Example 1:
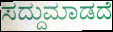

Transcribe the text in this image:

ಸದ್ದುಮಾಡದೆ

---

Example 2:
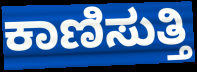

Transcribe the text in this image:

ಕಾಣಿಸುತ್ತಿ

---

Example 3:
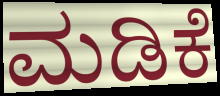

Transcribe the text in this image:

ಮಡಿಕೆ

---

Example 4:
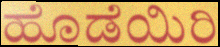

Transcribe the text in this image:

ಹೊಡೆಯಿರಿ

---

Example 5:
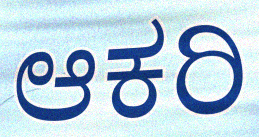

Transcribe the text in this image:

ಆಕರಿ